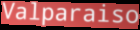
Valparaiso